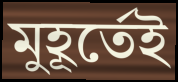
মুহূর্তেই